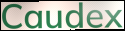
Caudex